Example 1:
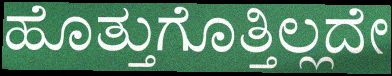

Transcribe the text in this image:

ಹೊತ್ತುಗೊತ್ತಿಲ್ಲದೇ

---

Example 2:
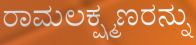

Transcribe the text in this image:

ರಾಮಲಕ್ಷ್ಮಣರನ್ನು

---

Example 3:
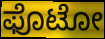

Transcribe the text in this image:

ಫೊಟೋ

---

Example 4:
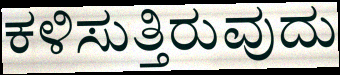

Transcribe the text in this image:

ಕಳಿಸುತ್ತಿರುವುದು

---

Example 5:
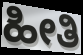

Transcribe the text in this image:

ಹೀತಿ